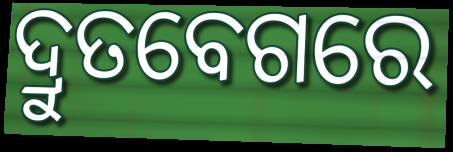
ଦ୍ରୁତବେଗରେ